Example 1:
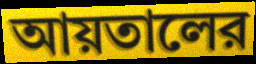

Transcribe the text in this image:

আয়তালের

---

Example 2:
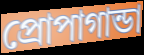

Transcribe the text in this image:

প্রোপাগান্ডা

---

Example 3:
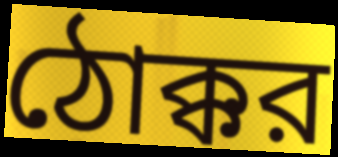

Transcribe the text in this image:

ঠোক্কর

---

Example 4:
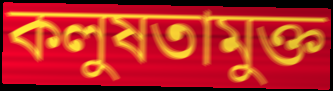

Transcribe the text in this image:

কলুষতামুক্ত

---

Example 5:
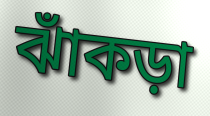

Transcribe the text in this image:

ঝাঁকড়া